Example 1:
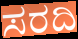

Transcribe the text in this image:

ಸರದಿ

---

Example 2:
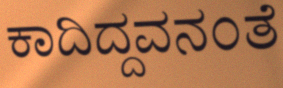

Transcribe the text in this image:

ಕಾದಿದ್ದವನಂತೆ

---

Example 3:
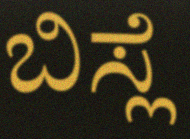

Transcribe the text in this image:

ಬಿಸ್ಲೆ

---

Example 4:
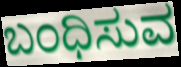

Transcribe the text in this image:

ಬಂಧಿಸುವ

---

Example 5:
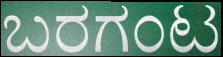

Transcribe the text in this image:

ಬರಗಂಟ